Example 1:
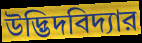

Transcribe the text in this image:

উদ্ভিদবিদ্যার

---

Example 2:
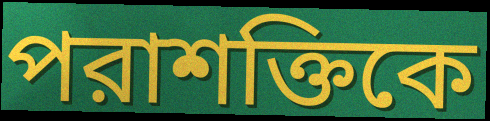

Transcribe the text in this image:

পরাশক্তিকে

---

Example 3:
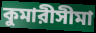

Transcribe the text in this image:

কুমারীসীমা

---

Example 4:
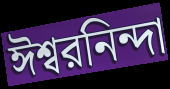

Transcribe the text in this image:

ঈশ্বরনিন্দা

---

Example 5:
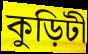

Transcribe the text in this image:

কুড়িটী